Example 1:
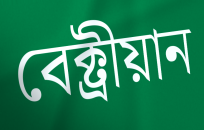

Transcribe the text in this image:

বেক্ট্ৰীয়ান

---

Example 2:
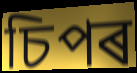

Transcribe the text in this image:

চিপৰ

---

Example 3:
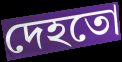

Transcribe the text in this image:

দেহতো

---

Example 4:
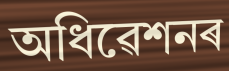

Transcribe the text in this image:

অধিৱেশনৰ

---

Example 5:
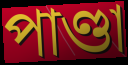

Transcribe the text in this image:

পাণ্ডা